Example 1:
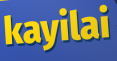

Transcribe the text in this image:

kayilai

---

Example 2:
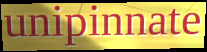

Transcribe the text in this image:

unipinnate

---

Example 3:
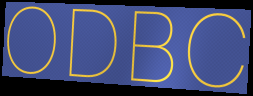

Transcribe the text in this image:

ODBC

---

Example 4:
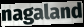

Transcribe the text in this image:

nagaland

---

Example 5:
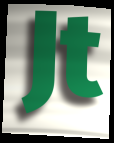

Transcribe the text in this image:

Jt